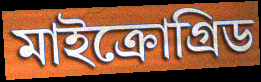
মাইক্রোগ্রিড